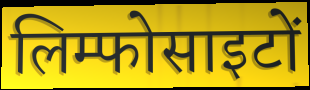
लिम्फोसाइटों